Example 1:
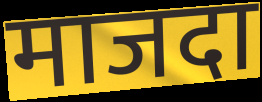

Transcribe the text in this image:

माजदा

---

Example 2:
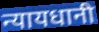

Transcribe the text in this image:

न्यायधानी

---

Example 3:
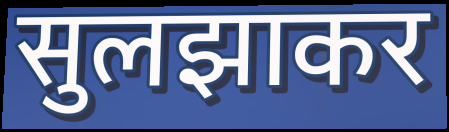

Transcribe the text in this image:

सुलझाकर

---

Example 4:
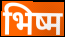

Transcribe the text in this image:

भिष्म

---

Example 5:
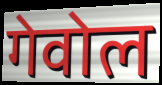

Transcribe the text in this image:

गेवोल